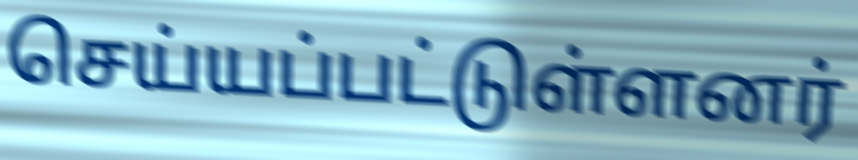
செய்யப்பட்டுள்ளனர்